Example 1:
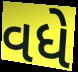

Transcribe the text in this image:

વધે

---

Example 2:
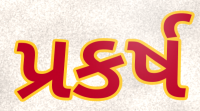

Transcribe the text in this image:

પ્રકર્ષ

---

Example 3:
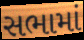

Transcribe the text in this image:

સભામાં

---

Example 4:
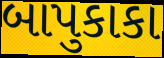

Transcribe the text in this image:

બાપુકાકા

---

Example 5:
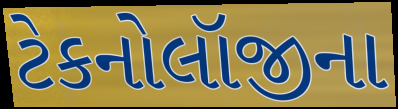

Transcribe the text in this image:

ટેકનોલૉજીના